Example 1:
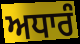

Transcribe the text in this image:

ਅਧਾਰੰ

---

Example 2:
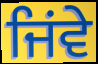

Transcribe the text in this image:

ਜਿਂਵੇ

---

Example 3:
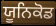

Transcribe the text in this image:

ਯੂਨਿਕੋਡ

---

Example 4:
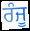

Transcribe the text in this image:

ਰੰਜੂ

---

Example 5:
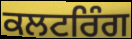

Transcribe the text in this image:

ਕਲਟਰਿੰਗ